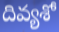
దివ్యశో